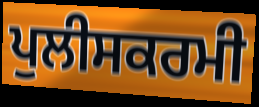
ਪੁਲੀਸਕਰਮੀ